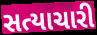
સત્યાચારી